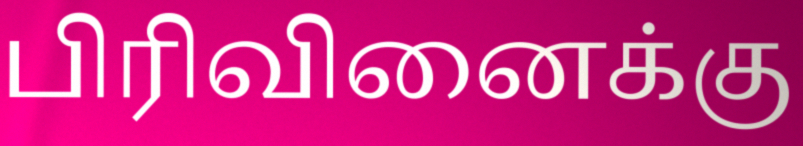
பிரிவினைக்கு